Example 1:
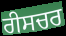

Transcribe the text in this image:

ਰੀਸਚਰ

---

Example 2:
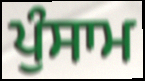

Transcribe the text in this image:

ਪੁੰਸਾਮ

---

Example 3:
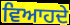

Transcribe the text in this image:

ਵਿਆਹਦੇ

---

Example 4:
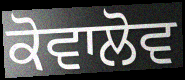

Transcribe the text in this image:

ਕੋਵਾਲੋਵ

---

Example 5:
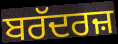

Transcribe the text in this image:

ਬਰੱਦਰਜ਼